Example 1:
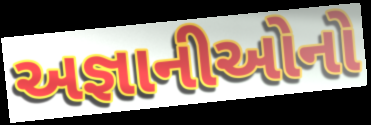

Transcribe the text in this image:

અજ્ઞાનીઓનો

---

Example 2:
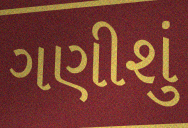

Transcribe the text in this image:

ગણીશું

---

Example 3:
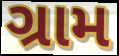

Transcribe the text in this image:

ગ્રામ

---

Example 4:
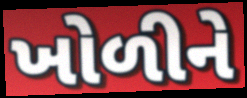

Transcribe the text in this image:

ખોળીને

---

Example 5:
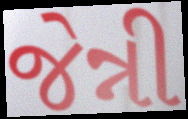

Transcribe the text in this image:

જેન્ની